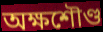
অক্ষশৌণ্ড